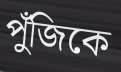
পুঁজিকে